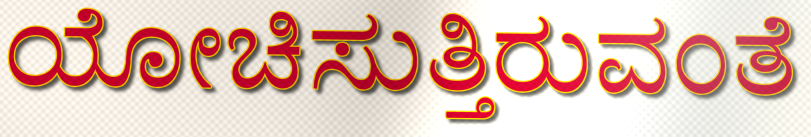
ಯೋಚಿಸುತ್ತಿರುವಂತೆ